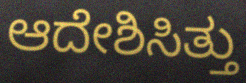
ಆದೇಶಿಸಿತ್ತು